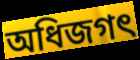
অধিজগৎ